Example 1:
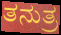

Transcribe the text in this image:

ತನುತ್ರ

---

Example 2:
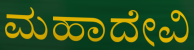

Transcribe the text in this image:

ಮಹಾದೇವಿ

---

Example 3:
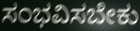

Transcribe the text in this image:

ಸಂಭವಿಸಬೇಕು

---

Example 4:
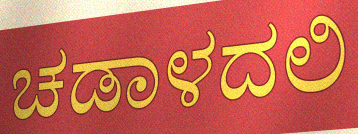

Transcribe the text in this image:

ಚಡಾಳದಲಿ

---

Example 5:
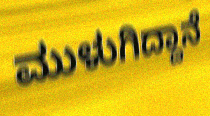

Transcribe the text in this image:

ಮುಳುಗಿದ್ದಾನೆ